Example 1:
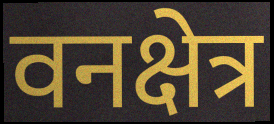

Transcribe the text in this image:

वनक्षेत्र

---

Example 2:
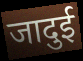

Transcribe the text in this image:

जादुई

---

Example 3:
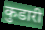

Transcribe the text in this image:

कुडारी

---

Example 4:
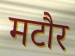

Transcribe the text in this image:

मटौर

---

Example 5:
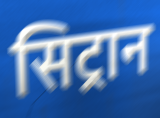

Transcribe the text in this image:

सिट्रान